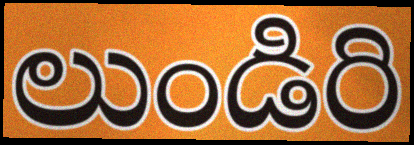
లుండిరి